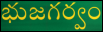
భుజగర్వం